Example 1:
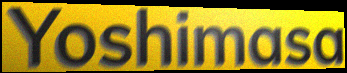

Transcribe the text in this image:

Yoshimasa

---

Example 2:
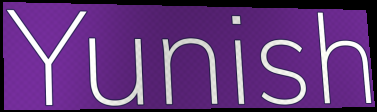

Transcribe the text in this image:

Yunish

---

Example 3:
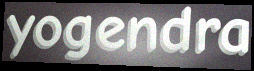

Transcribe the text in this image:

yogendra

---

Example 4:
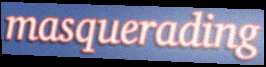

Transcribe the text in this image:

masquerading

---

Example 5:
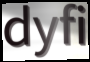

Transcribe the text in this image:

dyfi